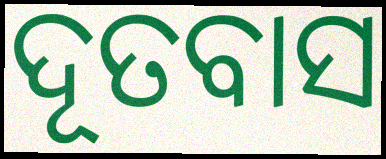
ଦୂତବାସ